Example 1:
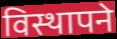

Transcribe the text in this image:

विस्थापने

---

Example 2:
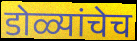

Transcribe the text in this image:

डोळ्यांचेच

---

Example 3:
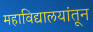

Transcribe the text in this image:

महाविद्यालयांतून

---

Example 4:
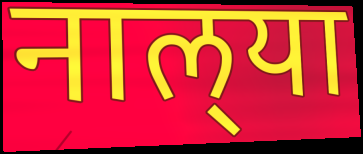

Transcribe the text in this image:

नाल्या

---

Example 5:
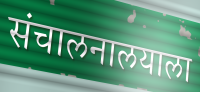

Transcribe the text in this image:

संचालनालयाला